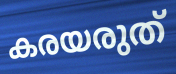
കരയരുത്